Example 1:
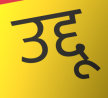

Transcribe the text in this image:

उद्दू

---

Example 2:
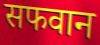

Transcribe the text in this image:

सफवान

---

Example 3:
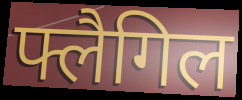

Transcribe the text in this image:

फ्लैगिल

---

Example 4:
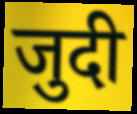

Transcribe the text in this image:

जुदी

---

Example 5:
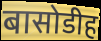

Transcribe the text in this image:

बासोडीह